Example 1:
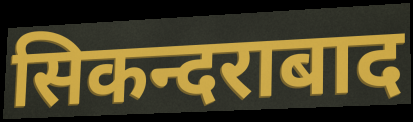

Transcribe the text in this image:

सिकन्दराबाद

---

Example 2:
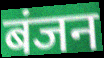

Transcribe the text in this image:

बंजन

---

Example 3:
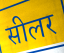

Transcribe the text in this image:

सीलर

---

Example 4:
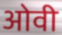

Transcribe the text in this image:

ओवी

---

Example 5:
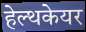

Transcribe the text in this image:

हेल्थकेयर